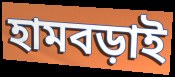
হামবড়াই